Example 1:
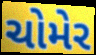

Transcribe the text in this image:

ચોમેર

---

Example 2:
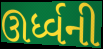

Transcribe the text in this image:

ઊર્ધ્વની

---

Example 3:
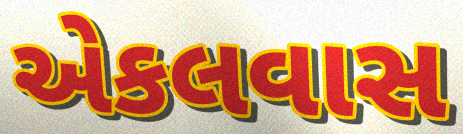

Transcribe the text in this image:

એકલવાસ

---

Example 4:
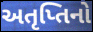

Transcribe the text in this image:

અતૃપ્તિનો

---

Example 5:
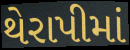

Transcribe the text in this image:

થેરાપીમાં